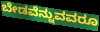
ಬೇಡವೆನ್ನುವವರೂ